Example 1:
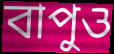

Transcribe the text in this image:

বাপুও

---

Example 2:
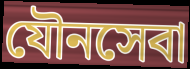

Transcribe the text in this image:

যৌনসেবা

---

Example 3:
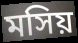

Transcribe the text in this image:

মসিয়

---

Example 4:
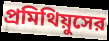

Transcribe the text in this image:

প্রমিথিয়ুসের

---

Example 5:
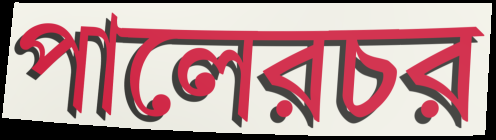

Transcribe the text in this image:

পালেরচর